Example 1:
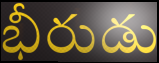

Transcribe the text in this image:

భీరుడు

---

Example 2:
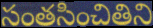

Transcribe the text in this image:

సంతసించితిని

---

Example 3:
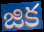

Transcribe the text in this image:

జిక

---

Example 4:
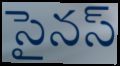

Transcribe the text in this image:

సైనస్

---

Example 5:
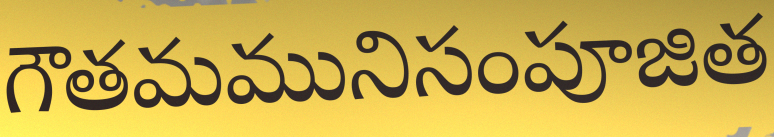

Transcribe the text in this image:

గౌతమమునిసంపూజిత